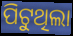
ପିଟୁଥିଲା